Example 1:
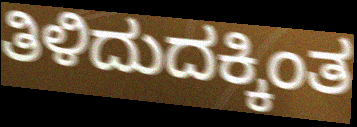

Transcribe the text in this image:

ತಿಳಿದುದಕ್ಕಿಂತ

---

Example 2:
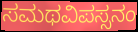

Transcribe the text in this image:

ಸಮಥವಿಪಸ್ಸನಂ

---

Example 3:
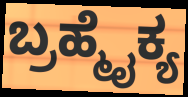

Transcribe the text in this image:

ಬ್ರಹ್ಮೈಕ್ಯ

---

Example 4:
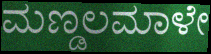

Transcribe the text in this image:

ಮಣ್ಡಲಮಾಳೇ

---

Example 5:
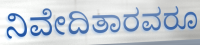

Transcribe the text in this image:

ನಿವೇದಿತಾರವರೂ